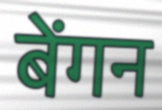
बेंगन